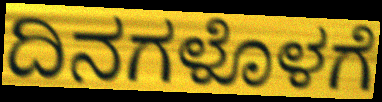
ದಿನಗಳೊಳಗೆ